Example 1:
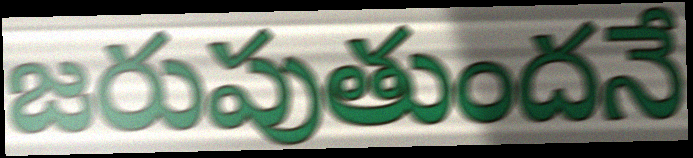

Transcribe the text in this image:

జరుపుతుందనే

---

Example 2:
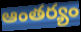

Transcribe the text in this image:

ఆంతర్యం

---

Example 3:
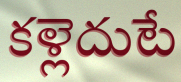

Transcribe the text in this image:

కళ్లెదుటే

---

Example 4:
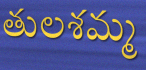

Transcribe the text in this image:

తులశమ్మ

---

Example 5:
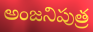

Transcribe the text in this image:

అంజనిపుత్ర